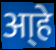
आ्हे